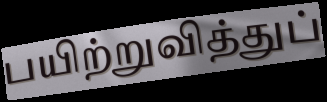
பயிற்றுவித்துப்